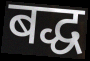
बद्ध